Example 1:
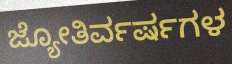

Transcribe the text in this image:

ಜ್ಯೋತಿರ್ವರ್ಷಗಳ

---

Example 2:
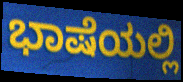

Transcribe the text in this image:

ಭಾಷೆಯಲ್ಲಿ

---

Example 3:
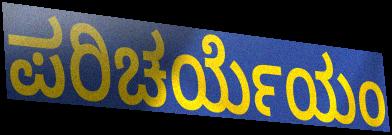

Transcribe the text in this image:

ಪರಿಚರ್ಯೆಯಂ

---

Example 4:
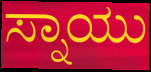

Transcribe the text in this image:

ಸ್ನಾಯು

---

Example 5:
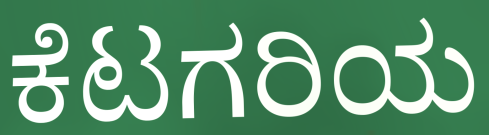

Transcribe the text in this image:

ಕೆಟಗರಿಯ